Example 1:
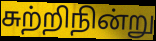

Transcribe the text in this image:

சுற்றிநின்று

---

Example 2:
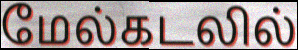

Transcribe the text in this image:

மேல்கடலில்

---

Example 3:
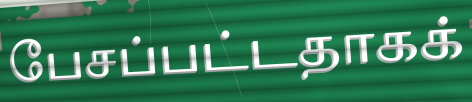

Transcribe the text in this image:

பேசப்பட்டதாகக்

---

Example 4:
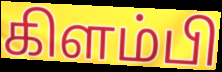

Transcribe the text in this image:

கிளம்பி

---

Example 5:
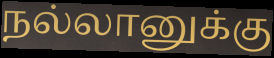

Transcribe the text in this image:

நல்லானுக்கு